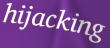
hijacking